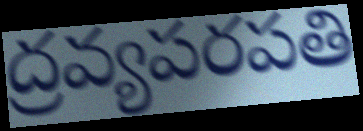
ద్రవ్యపరపతి